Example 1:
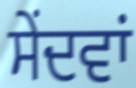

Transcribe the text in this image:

ਸੇਂਦਵਾਂ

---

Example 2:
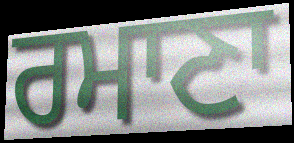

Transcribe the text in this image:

ਰਮਾਣਾ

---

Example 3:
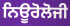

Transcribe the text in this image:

ਨਿਊਰੋਲੋਜੀ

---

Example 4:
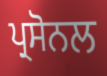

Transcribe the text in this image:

ਪ੍ਰਸੋਨਲ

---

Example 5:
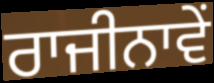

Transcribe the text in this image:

ਰਾਜੀਨਾਵੇਂ